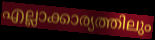
എല്ലാക്കാര്യത്തിലും